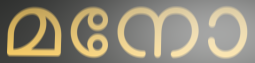
മനോ